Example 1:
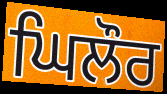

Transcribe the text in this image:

ਘਿਲੌਰ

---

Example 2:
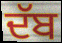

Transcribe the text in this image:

ਦੱਬ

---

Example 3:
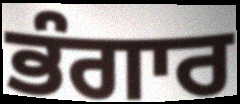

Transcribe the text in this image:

ਭੰਗਾਰ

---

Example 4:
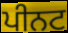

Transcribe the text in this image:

ਪੀਨਟ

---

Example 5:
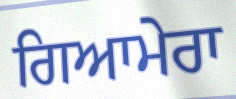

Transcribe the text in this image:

ਗਿਆਮੇਰਾ